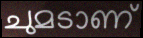
ചുമടാണ്